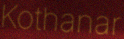
Kothanar